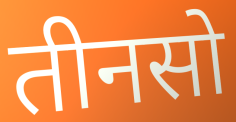
तीनसो